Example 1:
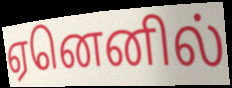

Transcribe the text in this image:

ஏனெனில்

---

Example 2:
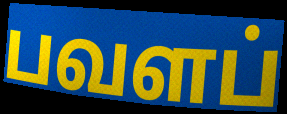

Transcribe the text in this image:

பவளப்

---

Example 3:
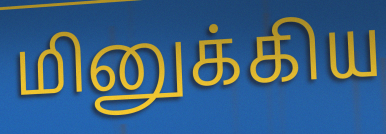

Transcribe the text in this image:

மினுக்கிய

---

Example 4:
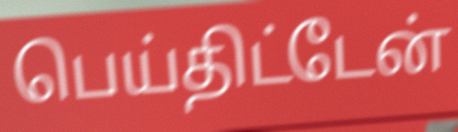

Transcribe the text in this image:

பெய்திட்டேன்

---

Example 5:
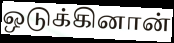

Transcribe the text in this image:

ஒடுக்கினான்